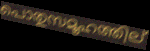
പൊതുസമൂഹത്തില്